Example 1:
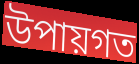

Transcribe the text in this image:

উপায়গত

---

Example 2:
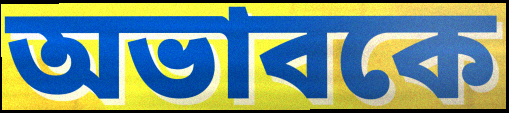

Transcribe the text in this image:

অভাবকে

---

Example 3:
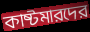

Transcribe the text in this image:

কাষ্টমারদের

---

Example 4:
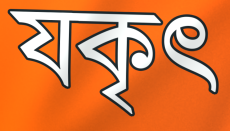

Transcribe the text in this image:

যকৃৎ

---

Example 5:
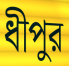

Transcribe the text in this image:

ধীপুর